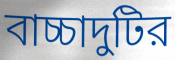
বাচ্চাদুটির